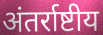
अंतर्राष्टीय